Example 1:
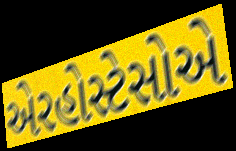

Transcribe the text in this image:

એરહોસ્ટેસોએ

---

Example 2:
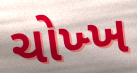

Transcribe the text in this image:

ચોખ્ખ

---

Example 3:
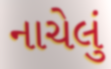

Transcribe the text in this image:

નાચેલું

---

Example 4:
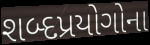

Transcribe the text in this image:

શબ્દપ્રયોગોના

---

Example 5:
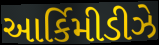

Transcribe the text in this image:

આર્કિમીડીઝે